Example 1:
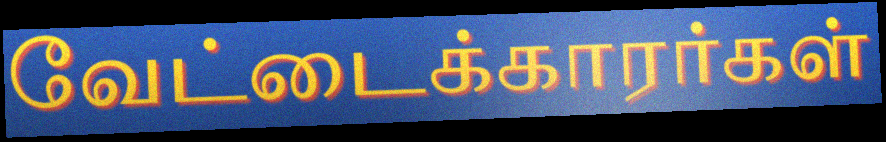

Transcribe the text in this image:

வேட்டைக்காரர்கள்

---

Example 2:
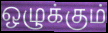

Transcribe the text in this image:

ஒழுக்கும்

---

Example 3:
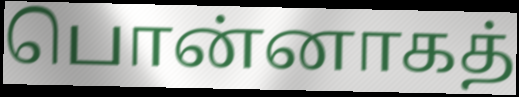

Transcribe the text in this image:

பொன்னாகத்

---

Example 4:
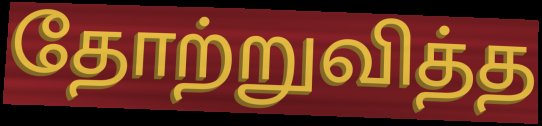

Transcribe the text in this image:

தோற்றுவித்த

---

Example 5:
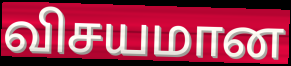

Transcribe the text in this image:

விசயமான